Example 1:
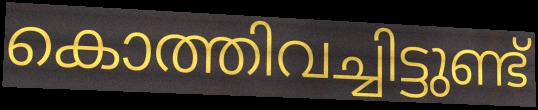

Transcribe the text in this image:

കൊത്തിവച്ചിട്ടുണ്ട്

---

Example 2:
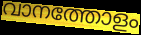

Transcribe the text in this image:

വാനത്തോളം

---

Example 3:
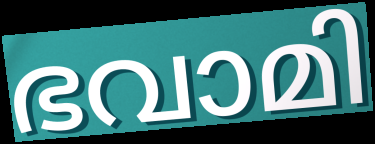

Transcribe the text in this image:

ഭവാമി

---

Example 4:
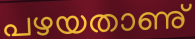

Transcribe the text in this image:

പഴയതാണു്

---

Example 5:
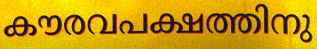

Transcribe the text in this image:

കൗരവപക്ഷത്തിനു